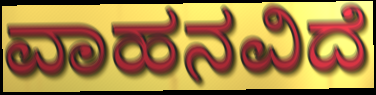
ವಾಹನವಿದೆ